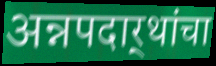
अन्नपदार्थांचा